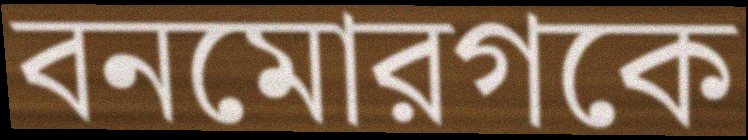
বনমোরগকে